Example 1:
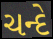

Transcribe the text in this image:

ચન્દે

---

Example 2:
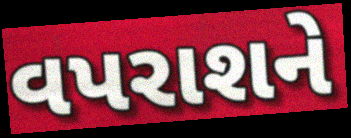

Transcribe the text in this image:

વપરાશને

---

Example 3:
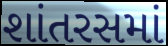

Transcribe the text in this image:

શાંતરસમાં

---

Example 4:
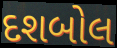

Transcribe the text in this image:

દશબોલ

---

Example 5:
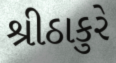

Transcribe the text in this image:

શ્રીઠાકુરે